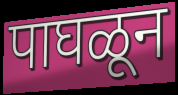
पाघळून